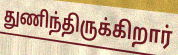
துணிந்திருக்கிறார்